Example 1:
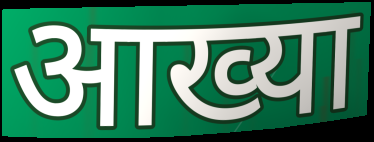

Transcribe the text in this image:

आख्या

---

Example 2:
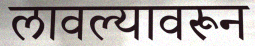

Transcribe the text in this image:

लावल्यावरून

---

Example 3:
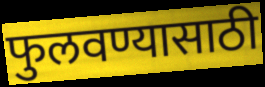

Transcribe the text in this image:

फुलवण्यासाठी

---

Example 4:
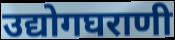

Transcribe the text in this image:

उद्योगघराणी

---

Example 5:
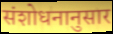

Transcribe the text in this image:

संशोधनानुसार